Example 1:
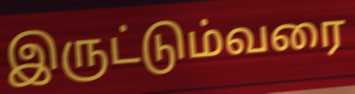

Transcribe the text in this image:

இருட்டும்வரை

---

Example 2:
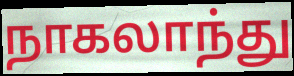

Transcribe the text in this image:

நாகலாந்து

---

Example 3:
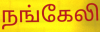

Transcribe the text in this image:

நங்கேலி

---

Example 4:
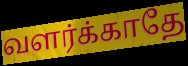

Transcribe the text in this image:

வளர்க்காதே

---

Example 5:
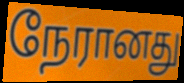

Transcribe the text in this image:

நேரானது